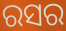
ରସର